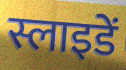
स्लाइडें